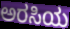
ಅರಸಿಯ